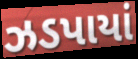
ઝડપાયાં